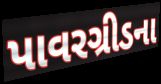
પાવરગ્રીડના